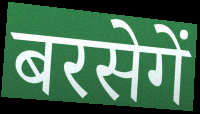
बरसेगें